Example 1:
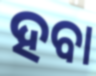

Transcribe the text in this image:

ହବା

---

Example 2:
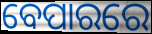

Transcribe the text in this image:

ବେପାରରେ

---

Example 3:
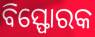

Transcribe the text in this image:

ବିସ୍ଫୋରକ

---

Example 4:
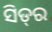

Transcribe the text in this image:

ସିଡ୍‌ର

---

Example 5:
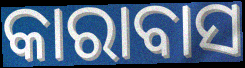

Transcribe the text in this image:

କାରାବାସ